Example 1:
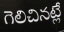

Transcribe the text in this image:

గెలిచినట్లే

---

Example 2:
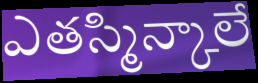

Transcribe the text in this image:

ఎతస్మిన్కాలే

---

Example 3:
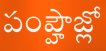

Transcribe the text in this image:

పంప్హౌజ్లో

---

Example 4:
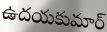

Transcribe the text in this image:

ఉదయకుమార్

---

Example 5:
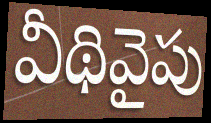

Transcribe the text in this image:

వీథివైపు